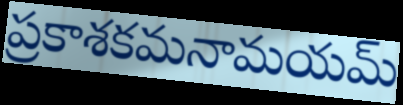
ప్రకాశకమనామయమ్